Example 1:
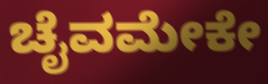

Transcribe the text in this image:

ಚೈವಮೇಕೇ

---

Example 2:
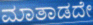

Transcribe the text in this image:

ಮಾತಾಡದೇ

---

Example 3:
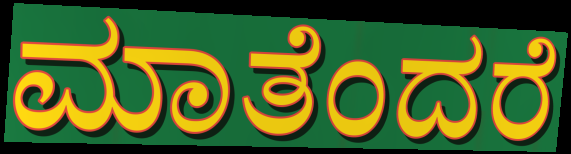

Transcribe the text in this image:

ಮಾತೆಂದರೆ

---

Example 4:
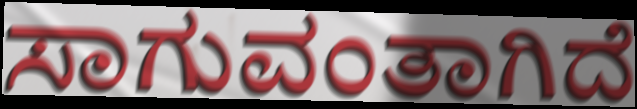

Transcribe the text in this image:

ಸಾಗುವಂತಾಗಿದೆ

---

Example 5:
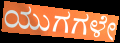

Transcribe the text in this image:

ಯುಗಗಳೇ